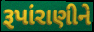
રૂપાંરાણીને